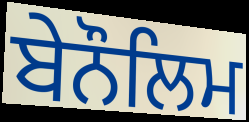
ਬੇਨੌਲਿਮ